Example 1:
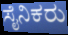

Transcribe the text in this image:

ಸೈನಿಕರು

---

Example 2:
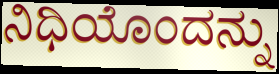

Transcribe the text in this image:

ನಿಧಿಯೊಂದನ್ನು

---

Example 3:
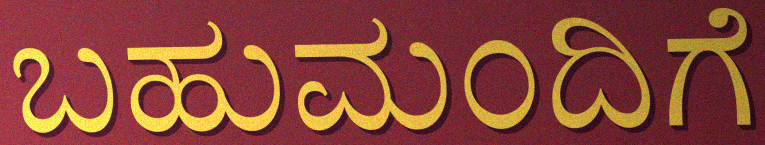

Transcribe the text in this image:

ಬಹುಮಂದಿಗೆ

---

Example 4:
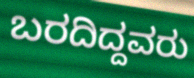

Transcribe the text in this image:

ಬರದಿದ್ದವರು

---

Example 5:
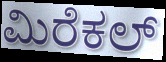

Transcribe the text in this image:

ಮಿರೆಕಲ್